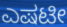
ಎಷಟೀ